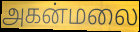
அகன்மலை